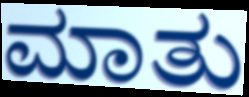
ಮಾತು